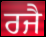
ਰਜੈ